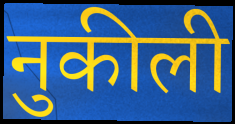
नुकीली